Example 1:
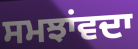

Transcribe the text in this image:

ਸਮਝਾਂਵਦਾ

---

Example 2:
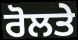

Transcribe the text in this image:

ਰੋਲਤੇ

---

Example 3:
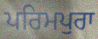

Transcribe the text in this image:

ਪਰਿਮਪੁਰਾ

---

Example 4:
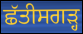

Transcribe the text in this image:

ਛੱਤੀਸਗਡ਼੍ਹ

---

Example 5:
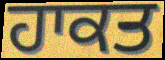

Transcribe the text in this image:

ਹਾਕਤ